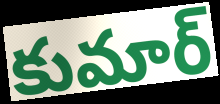
కుమార్